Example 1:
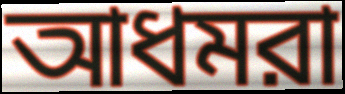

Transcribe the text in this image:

আধমরা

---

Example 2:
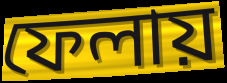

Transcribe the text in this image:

ফেলায়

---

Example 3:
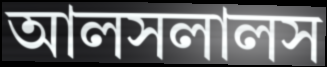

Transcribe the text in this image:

আলসলালস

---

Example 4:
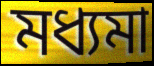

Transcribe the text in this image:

মধ্যমা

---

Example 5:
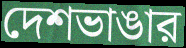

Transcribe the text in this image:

দেশভাঙার